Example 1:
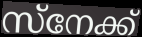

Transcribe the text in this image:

സ്നേക്ക്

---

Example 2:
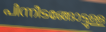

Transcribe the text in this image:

പിന്നീടങ്ങോട്ടുള്ള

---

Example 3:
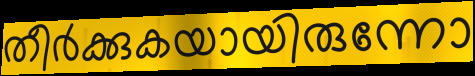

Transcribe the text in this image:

തീർക്കുകയായിരുന്നോ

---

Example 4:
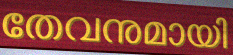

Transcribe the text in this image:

തേവനുമായി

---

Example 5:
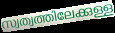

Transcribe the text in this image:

സ്വത്വത്തിലേക്കുള്ള